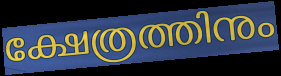
ക്ഷേത്രത്തിനും